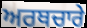
ਅਰਥਚਾਰੇ